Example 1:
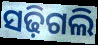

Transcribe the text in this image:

ସଢ଼ିଗଲି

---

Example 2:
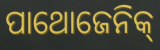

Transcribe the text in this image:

ପାଥୋଜେନିକ୍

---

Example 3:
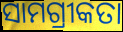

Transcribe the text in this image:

ସାମଗ୍ରୀକତା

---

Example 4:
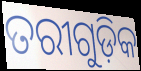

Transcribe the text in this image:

ତରୀଗୁଡ଼ିକ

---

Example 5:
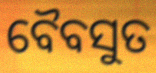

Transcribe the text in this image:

ବୈବସୁତ